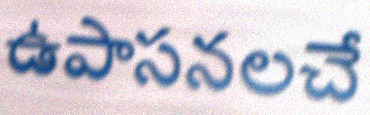
ఉపాసనలచే